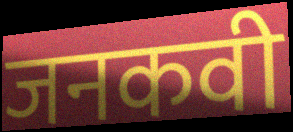
जनकवी